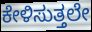
ಕೇಳಿಸುತ್ತಲೇ